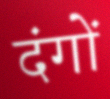
दंगों